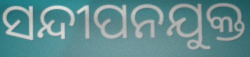
ସନ୍ଦୀପନଯୁକ୍ତ